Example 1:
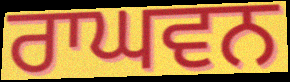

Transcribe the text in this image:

ਰਾਘਵਨ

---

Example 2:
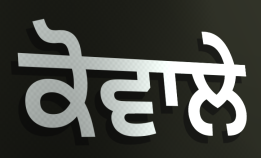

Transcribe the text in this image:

ਕੋਵਾਲੇ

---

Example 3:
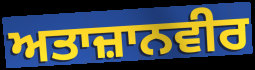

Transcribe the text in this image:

ਅਤਾਜ਼ਾਨਵੀਰ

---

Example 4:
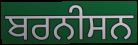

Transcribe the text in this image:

ਬਰਨੀਸਨ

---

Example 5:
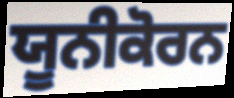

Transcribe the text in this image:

ਯੂਨੀਕੋਰਨ